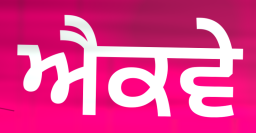
ਐਕਵੇ